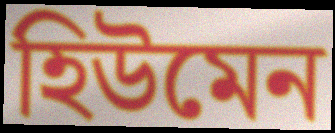
হিউমেন